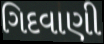
ગિદવાણી